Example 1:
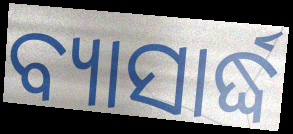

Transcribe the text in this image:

ବ୍ୟାସାର୍ଦ୍ଧ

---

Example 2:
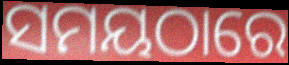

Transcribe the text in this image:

ସମୟଠାରେ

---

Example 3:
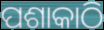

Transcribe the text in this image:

ପଶାକାଠି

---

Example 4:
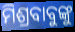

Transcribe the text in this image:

ମିଶ୍ରବାବୁଙ୍କୁ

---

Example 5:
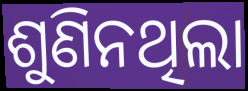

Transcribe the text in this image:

ଶୁଣିନଥିଲା